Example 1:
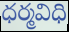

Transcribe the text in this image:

ధర్మవిధి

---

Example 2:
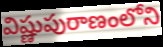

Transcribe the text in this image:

విష్ణుపురాణంలోని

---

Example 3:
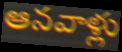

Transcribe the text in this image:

ఆనవాళ్లు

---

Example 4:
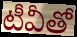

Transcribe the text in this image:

టీవీతో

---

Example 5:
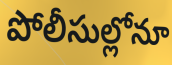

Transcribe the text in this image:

పోలీసుల్లోనూ